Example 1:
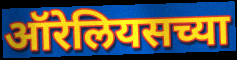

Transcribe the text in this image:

ऑरेलियसच्या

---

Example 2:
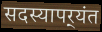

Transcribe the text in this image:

सदस्यापर्यंत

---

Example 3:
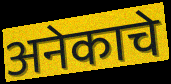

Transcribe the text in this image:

अनेकाचे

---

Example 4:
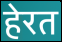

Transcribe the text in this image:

हेरत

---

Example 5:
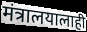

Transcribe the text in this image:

मंत्रालयालाही